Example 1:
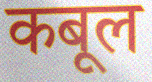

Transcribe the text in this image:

कबूल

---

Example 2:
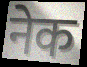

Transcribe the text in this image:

नेक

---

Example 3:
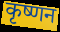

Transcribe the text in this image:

कृष्णन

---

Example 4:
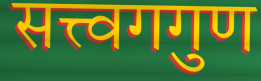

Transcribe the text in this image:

सत्त्वगगुण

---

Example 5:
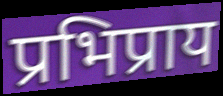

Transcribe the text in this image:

प्रभिप्राय